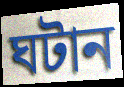
ঘটান